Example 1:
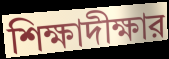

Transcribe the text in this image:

শিক্ষাদীক্ষার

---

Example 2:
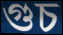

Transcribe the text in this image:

গুচ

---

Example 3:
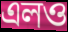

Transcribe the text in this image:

এলও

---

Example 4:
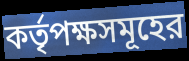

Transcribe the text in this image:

কর্তৃপক্ষসমূহের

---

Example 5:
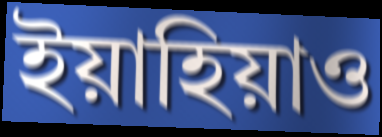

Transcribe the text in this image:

ইয়াহিয়াও